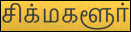
சிக்மகளூர்